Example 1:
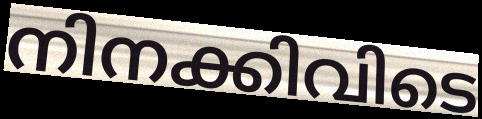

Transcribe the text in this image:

നിനക്കിവിടെ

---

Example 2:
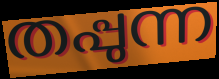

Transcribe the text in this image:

തപ്പുന്ന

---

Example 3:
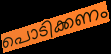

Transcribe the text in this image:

പൊടിക്കണം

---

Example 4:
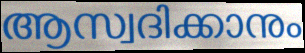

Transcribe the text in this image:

ആസ്വദിക്കാനും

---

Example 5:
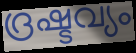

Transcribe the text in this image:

ദ്രഷ്ടവ്യം